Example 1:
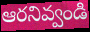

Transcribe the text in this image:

ఆరనివ్వండి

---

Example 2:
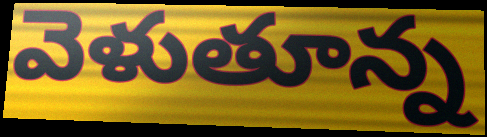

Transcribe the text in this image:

వెళుతూన్న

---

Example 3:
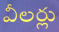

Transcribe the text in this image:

వీలర్లు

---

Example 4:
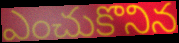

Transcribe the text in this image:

ఎంచుకొనిన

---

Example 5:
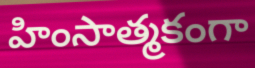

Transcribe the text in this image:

హింసాత్మకంగా